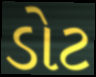
ડોટ